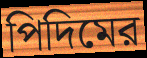
পিদিমের